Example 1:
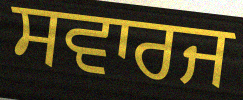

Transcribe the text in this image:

ਸਵਾਰਜ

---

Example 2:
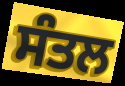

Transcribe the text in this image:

ਸੰਤਲ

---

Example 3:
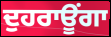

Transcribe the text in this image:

ਦੁਹਰਾਊਂਗਾ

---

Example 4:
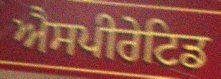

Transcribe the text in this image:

ਐਸਪੀਰੇਟਿਡ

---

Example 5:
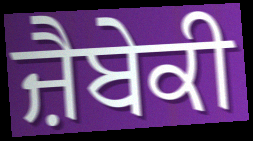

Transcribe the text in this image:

ਜ਼ੈਬੇਕੀ